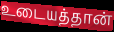
உடையத்தான்